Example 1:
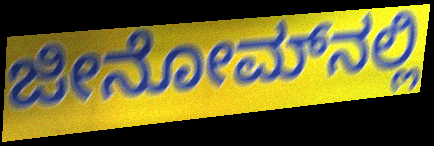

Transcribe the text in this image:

ಜೀನೋಮ್‌ನಲ್ಲಿ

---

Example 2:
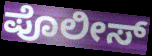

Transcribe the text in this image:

ಪೊಲೀಸ್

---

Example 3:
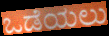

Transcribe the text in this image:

ಒಡೆಯಲು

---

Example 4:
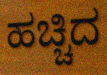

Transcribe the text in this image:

ಹಚ್ಚಿದ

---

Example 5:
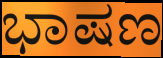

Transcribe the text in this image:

ಭಾಷಣ